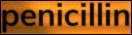
penicillin